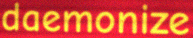
daemonize